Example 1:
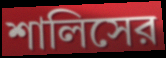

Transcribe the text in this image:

শালিসের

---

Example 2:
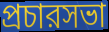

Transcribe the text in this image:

প্রচারসভা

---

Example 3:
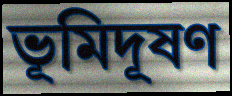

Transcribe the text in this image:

ভূমিদূষণ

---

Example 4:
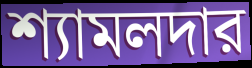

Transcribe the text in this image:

শ্যামলদার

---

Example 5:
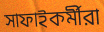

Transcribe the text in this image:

সাফাইকর্মীরা